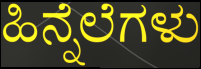
ಹಿನ್ನೆಲೆಗಳು